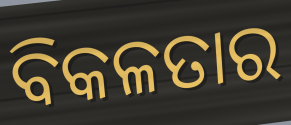
ବିକଳତାର